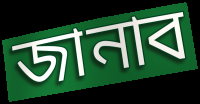
জানাব